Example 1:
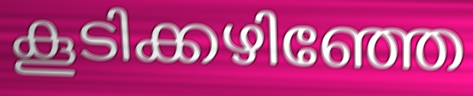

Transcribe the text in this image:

കൂടിക്കഴിഞ്ഞേ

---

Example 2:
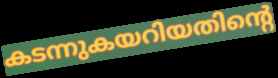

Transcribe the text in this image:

കടന്നുകയറിയതിന്റെ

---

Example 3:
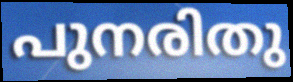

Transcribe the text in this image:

പുനരിതു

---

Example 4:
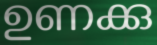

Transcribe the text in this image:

ഉണക്കു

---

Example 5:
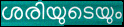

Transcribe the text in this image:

ശരിയുടെയും